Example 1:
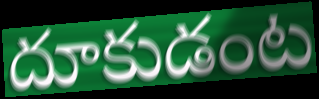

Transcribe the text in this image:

దూకుడంట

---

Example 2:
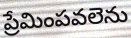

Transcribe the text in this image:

ప్రేమింపవలెను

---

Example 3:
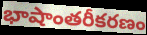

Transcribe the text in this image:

భాషాంతరీకరణం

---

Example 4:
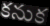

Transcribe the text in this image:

కనుక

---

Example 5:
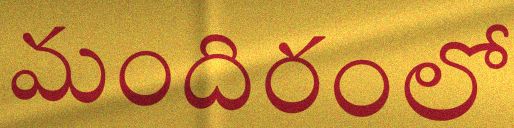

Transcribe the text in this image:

మందిరంలో